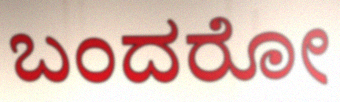
ಬಂದರೋ